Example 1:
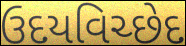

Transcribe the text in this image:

ઉદયવિચ્છેદ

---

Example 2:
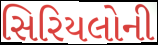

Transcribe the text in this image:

સિરિયલોની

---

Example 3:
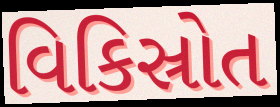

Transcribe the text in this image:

વિકિસ્રોત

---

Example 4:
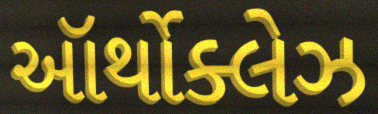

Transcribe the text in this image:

ઑર્થોક્લેઝ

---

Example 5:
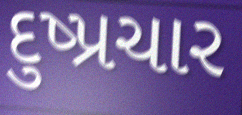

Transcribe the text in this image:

દુષ્પ્રચાર